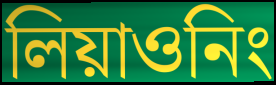
লিয়াওনিং